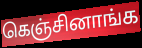
கெஞ்சினாங்க